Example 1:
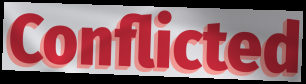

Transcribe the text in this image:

Conflicted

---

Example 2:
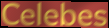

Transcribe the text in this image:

Celebes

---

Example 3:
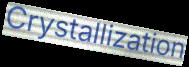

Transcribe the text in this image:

Crystallization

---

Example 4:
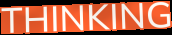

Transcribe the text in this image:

THINKING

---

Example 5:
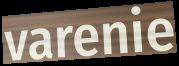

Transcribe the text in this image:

varenie